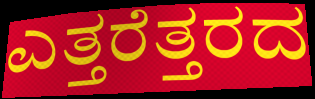
ಎತ್ತರೆತ್ತರದ